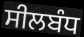
ਸੀਲਬੰਧ